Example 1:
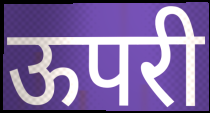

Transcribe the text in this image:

ऊपरी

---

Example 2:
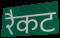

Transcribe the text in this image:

रैकट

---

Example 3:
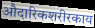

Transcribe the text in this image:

औदारिकशरीरकाय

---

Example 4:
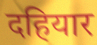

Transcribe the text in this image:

दहियार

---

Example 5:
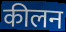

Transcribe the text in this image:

कीलन